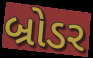
બ્રોડર